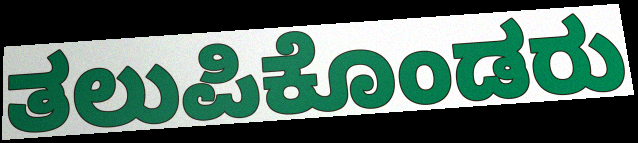
ತಲುಪಿಕೊಂಡರು